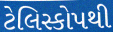
ટેલિસ્કોપથી